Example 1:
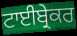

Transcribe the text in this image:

ਟਾਈਬ੍ਰੇਕਰ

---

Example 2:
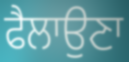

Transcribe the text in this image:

ਫੈਲਾਉਣਾ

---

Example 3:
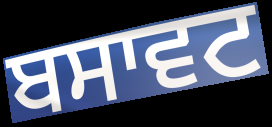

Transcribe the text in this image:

ਬਸਾਵਟ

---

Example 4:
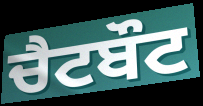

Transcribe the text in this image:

ਚੈਟਬੌਟ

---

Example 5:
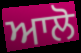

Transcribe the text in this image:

ਆਲੋ